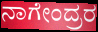
ನಾಗೇಂದ್ರರ